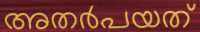
അതർപയത്